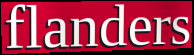
flanders